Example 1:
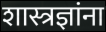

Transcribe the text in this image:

शास्त्रज्ञांना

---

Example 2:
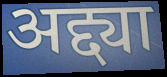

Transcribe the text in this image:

अद्द्या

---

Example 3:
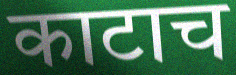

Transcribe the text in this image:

काटाच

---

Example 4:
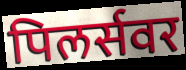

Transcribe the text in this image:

पिलर्सवर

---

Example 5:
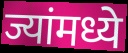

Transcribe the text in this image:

ज्यांमध्ये